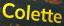
Colette